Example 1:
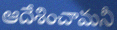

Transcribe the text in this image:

ఆదేశించామనీ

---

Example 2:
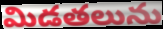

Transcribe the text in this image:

మిడతలును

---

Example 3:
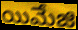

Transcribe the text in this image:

యిమేజి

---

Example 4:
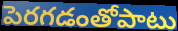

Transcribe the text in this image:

పెరగడంతోపాటు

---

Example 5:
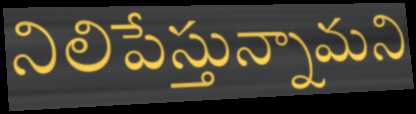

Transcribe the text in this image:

నిలిపేస్తున్నామని